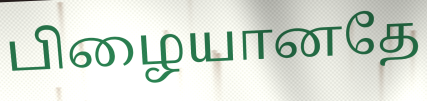
பிழையானதே